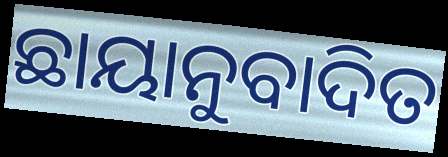
ଛାୟାନୁବାଦିତ